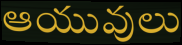
ఆయువులు